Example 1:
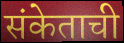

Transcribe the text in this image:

संकेताची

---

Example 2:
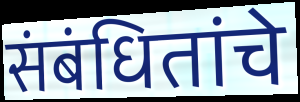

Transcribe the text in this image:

संबंधितांचे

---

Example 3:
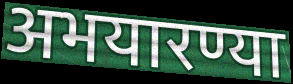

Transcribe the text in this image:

अभयारण्या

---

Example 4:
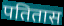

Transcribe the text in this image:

पतितास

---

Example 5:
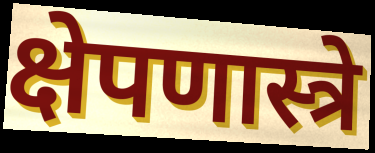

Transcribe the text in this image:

क्षेपणास्त्रे